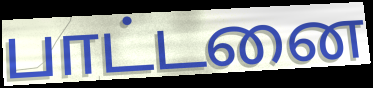
பாட்டனை